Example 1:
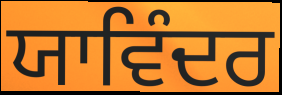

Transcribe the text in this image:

ਯਾਵਿੰਦਰ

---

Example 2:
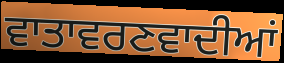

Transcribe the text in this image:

ਵਾਤਾਵਰਣਵਾਦੀਆਂ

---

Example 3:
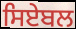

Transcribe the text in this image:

ਸਿਏਬਲ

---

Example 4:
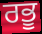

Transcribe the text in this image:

ਰਭੂ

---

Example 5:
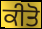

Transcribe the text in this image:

ਕੀਤੋ